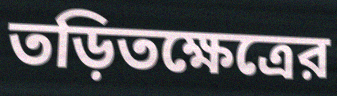
তড়িতক্ষেত্রের